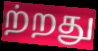
ற்றது